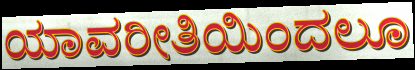
ಯಾವರೀತಿಯಿಂದಲೂ